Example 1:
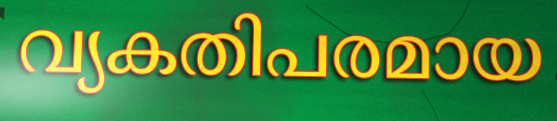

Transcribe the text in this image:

വ്യകതിപരമായ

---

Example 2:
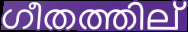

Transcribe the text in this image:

ഗീതത്തില്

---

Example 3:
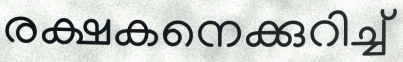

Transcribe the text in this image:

രക്ഷകനെക്കുറിച്ച്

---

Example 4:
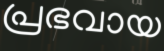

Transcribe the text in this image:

പ്രഭവായ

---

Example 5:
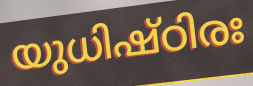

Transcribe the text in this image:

യുധിഷ്ഠിരഃ